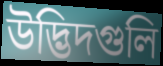
উদ্ভিদগুলি